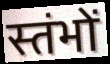
स्तंभों